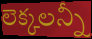
లెక్కలన్నీ